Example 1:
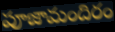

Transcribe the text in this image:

పూజామందిరం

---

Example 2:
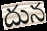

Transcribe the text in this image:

దున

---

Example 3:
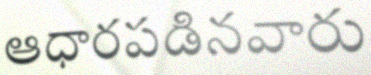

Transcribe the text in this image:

ఆధారపడినవారు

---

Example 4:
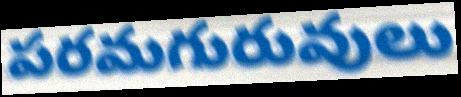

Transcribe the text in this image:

పరమగురువులు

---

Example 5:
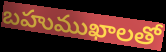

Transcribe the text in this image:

బహుముఖాలతో